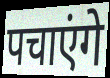
पचाएंगे